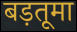
बड़तूमा